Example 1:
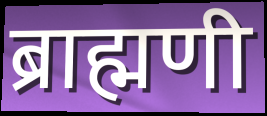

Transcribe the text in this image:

ब्राह्मणी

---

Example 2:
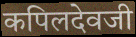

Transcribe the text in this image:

कपिलदेवजी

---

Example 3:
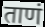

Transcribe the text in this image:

ताणं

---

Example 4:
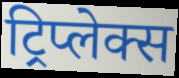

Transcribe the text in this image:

ट्रिप्लेक्स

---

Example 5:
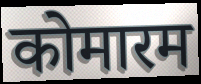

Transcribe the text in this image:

कोमारम